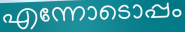
എന്നോടൊപ്പം